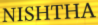
NISHTHA